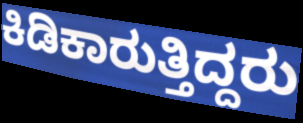
ಕಿಡಿಕಾರುತ್ತಿದ್ದರು